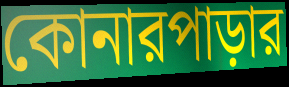
কোনারপাড়ার